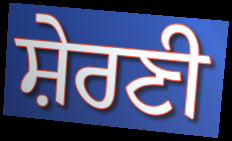
ਸ਼ੇਰਣੀ